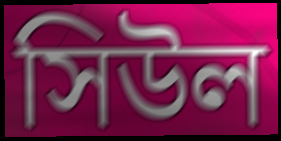
সিউল